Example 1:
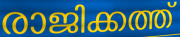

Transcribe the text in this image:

രാജിക്കത്ത്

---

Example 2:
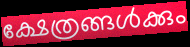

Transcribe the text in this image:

ക്ഷേത്രങ്ങൾക്കും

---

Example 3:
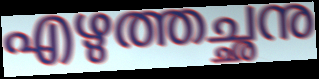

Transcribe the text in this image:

എഴുത്തച്ഛനു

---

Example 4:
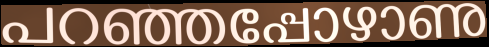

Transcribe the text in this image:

പറഞ്ഞപ്പോഴാണു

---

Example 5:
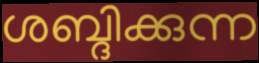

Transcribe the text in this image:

ശബ്ദിക്കുന്ന